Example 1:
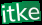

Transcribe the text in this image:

itke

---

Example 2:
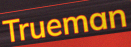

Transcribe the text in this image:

Trueman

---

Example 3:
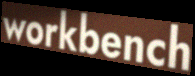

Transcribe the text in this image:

workbench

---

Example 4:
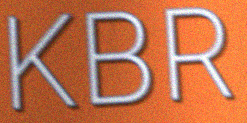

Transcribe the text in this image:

KBR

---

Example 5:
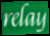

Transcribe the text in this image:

relay